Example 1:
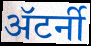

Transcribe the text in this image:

ॲटर्नी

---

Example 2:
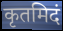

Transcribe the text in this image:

कृतमिदं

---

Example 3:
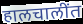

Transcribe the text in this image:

हालचालींत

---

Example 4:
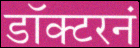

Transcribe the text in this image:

डॉक्टरनं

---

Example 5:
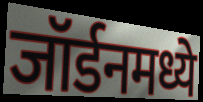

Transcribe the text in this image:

जॉर्डनमध्ये